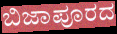
ಬಿಜಾಪೂರದ